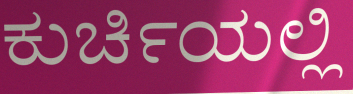
ಕುರ್ಚಿಯಲ್ಲಿ